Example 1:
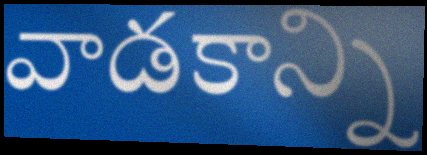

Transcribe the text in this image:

వాడకాన్ని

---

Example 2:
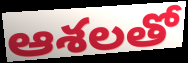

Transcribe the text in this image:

ఆశలతో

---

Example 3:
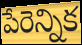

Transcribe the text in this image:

పేరెన్నిక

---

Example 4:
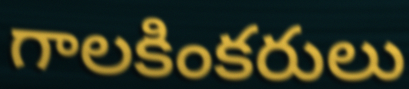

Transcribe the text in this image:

గాలకింకరులు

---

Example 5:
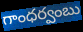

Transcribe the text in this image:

గాంధర్వంబు